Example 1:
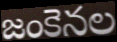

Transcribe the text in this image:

జంకెనల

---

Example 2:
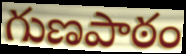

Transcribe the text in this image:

గుణపాఠం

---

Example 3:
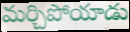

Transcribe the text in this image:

మర్చిపోయాడు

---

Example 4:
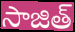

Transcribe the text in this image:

సాజిత్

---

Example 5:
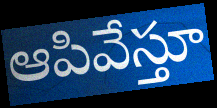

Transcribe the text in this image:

ఆపివేస్తూ